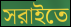
সরাইতে